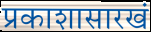
प्रकाशासारखं